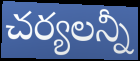
చర్యలన్నీ